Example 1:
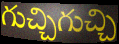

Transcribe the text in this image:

గుచ్చిగుచ్చి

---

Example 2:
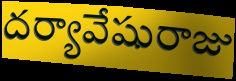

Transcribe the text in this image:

దర్యావేషురాజు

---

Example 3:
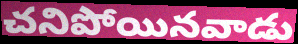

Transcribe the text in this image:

చనిపోయినవాడు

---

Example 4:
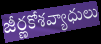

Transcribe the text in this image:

జీర్ణకోశవ్యాధులు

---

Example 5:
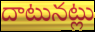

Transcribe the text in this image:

దాటునట్లు